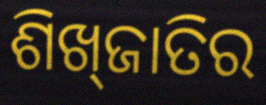
ଶିଖ୍‌ଜାତିର